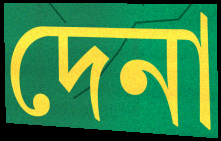
দেনা